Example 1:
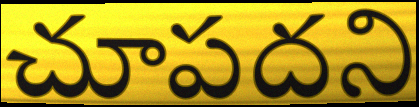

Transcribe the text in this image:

చూపదని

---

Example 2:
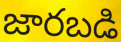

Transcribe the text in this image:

జారబడి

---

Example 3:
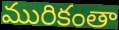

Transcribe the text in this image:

మురికంతా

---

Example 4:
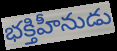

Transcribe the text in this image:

భక్తిహీనుడు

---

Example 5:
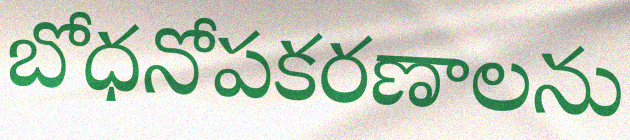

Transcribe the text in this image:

బోధనోపకరణాలను